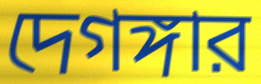
দেগঙ্গার